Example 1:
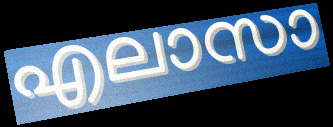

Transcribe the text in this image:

എലാസാ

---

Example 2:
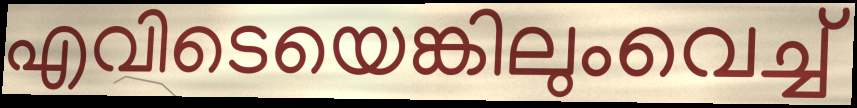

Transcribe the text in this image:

എവിടെയെങ്കിലുംവെച്ച്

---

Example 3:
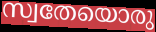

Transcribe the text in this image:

സ്വതേയൊരു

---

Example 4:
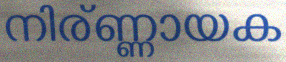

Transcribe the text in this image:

നിര്ണ്ണായക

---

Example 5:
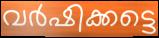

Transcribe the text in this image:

വർഷിക്കട്ടെ